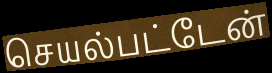
செயல்பட்டேன்